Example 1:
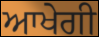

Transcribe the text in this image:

ਆਖੇਗੀ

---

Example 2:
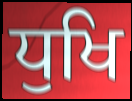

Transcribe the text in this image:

ਧੁਖਿ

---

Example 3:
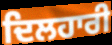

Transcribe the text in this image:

ਦਿਲਹਾਰੀ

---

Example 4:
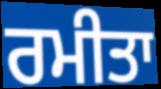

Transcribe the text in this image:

ਰਮੀਤਾ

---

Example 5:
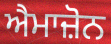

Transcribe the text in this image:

ਐਮਾਜ਼ੋਨ